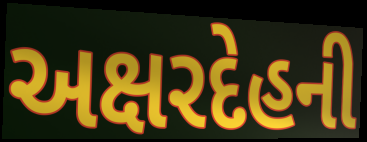
અક્ષરદેહની